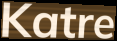
Katre